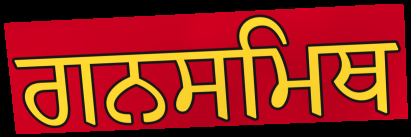
ਗਨਸਮਿਥ